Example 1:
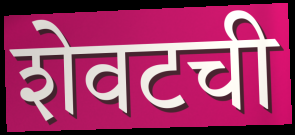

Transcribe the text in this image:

शेवटची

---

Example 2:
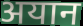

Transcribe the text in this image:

अयान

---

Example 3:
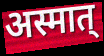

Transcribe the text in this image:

अस्मात्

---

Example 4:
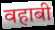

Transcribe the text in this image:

वहाबी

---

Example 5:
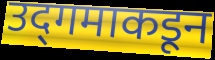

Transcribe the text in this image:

उद्‌गमाकडून